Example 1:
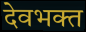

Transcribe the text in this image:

देवभक्त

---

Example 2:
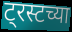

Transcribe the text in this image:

ट्रस्टच्या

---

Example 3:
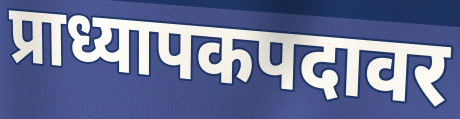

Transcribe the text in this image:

प्राध्यापकपदावर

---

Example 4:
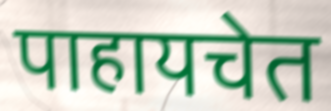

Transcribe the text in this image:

पाहायचेत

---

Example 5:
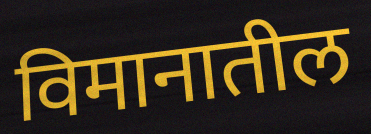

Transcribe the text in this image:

विमानातील